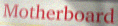
Motherboard